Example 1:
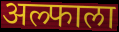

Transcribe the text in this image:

अल्फाला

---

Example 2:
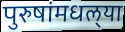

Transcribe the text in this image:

पुरुषांमधल्या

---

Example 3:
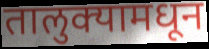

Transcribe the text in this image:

तालुक्यामधून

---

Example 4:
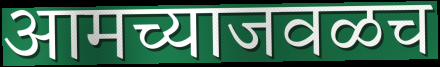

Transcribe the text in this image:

आमच्याजवळच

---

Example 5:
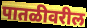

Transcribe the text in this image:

पातळीवरील